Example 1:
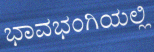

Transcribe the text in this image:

ಭಾವಭಂಗಿಯಲ್ಲಿ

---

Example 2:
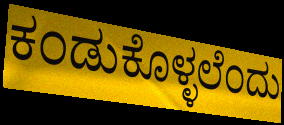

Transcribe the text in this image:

ಕಂಡುಕೊಳ್ಳಲೆಂದು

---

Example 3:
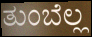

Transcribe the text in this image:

ತುಂಬೆಲ್ಲ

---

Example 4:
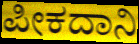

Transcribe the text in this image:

ಪೀಕದಾನಿ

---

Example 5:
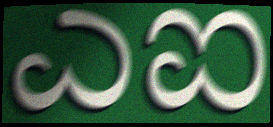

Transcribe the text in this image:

ಎಐ